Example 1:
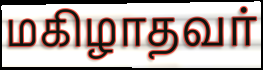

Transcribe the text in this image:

மகிழாதவர்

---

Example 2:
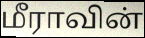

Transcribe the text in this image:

மீராவின்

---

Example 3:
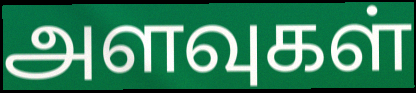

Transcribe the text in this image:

அளவுகள்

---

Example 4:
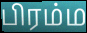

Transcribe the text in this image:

பிரம்ம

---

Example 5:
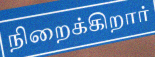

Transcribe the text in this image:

நிறைக்கிறார்